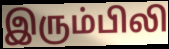
இரும்பிலி